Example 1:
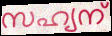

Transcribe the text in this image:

സഹ്യന്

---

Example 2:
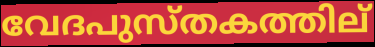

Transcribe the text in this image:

വേദപുസ്തകത്തില്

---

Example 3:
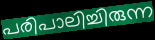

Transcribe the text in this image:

പരിപാലിച്ചിരുന്ന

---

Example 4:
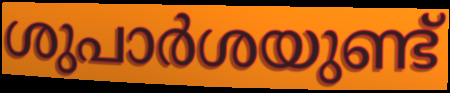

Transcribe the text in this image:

ശുപാർശയുണ്ട്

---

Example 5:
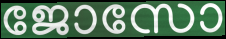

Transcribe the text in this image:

ജോസോ